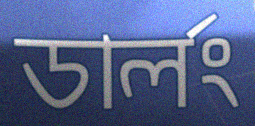
ডার্লং